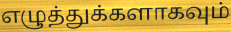
எழுத்துக்களாகவும்